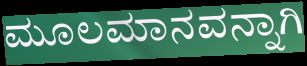
ಮೂಲಮಾನವನ್ನಾಗಿ